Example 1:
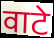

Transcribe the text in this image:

वाटे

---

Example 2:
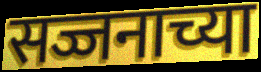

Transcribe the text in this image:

सज्जनाच्या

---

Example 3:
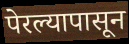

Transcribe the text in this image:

पेरल्यापासून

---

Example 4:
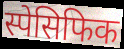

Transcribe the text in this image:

स्पेसिफिक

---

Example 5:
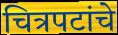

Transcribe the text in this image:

चित्रपटांचे